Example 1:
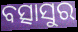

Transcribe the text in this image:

ବତ୍ସାସୁର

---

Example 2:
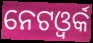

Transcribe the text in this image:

ନେଟଓ୍ବର୍କ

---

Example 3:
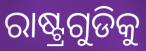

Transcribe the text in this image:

ରାଷ୍ଟ୍ରଗୁଡିକୁ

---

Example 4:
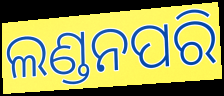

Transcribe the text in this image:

ଲଣ୍ଡନପରି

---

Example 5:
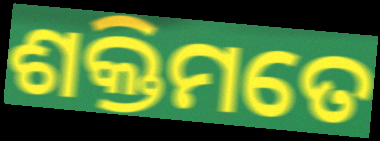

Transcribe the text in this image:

ଶକ୍ତିମତେ